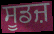
ਸੂਡਜ਼